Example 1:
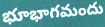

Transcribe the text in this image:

భూభాగమందు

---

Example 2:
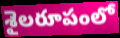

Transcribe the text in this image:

శైలరూపంలో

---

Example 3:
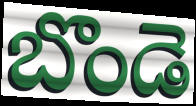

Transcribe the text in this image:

బొండె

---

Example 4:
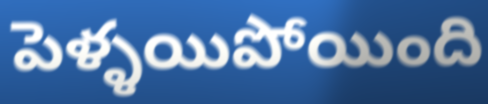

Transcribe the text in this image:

పెళ్ళయిపోయింది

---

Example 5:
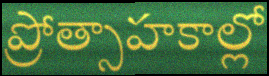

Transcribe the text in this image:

ప్రోత్సాహకాల్లో